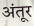
अंतूर